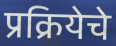
प्रक्रियेचे